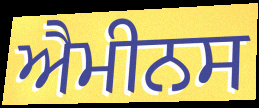
ਐਮੀਨਸ